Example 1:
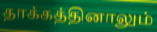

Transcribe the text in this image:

தாக்கத்தினாலும்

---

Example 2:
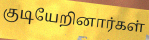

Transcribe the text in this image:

குடியேறினார்கள்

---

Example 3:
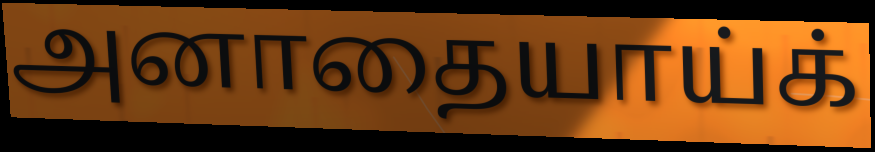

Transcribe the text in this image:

அனாதையாய்க்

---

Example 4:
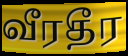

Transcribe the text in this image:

வீரதீர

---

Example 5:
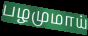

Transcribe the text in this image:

பழமுமாய்